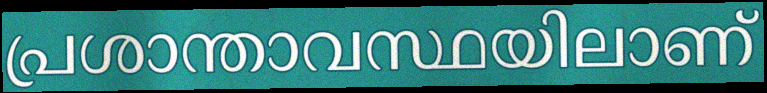
പ്രശാന്താവസ്ഥയിലാണ്